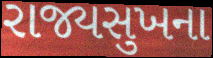
રાજ્યસુખના